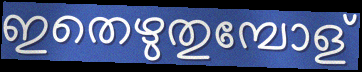
ഇതെഴുതുമ്പോള്